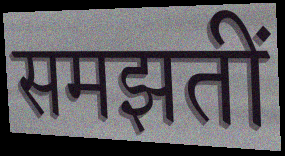
समझतीं